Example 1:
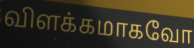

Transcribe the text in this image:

விளக்கமாகவோ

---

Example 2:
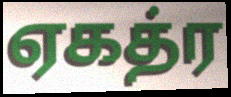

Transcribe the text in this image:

ஏகத்ர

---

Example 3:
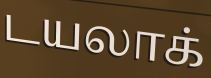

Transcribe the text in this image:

டயலாக்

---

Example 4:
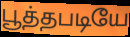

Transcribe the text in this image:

பூத்தபடியே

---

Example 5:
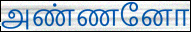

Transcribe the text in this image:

அண்ணனோ